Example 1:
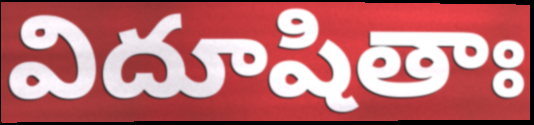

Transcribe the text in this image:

విదూషితాః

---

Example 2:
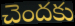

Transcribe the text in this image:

చెందకు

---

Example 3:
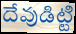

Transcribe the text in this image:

దేవుడిట్టి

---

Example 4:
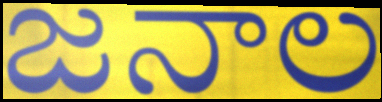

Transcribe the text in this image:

జనాల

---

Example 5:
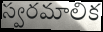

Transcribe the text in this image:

స్వరమాలిక